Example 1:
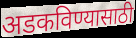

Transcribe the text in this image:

अडकविण्यासाठी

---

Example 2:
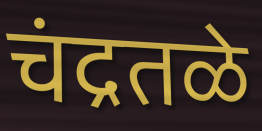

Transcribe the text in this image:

चंद्रतळे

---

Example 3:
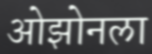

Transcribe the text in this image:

ओझोनला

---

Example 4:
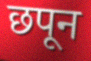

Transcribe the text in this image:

छपून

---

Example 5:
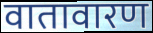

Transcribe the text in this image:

वातावारण